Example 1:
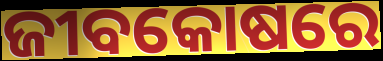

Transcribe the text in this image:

ଜୀବକୋଷରେ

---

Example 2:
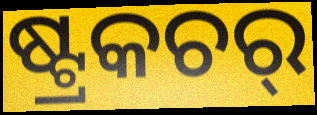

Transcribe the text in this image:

ଷ୍ଟ୍ରକଚର୍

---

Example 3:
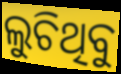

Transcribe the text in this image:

ଲୁଚିଥିବୁ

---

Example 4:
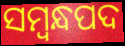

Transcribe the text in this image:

ସମ୍ବନ୍ଧପଦ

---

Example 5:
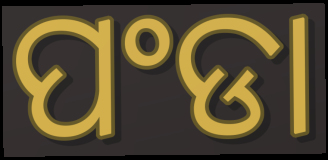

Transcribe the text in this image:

ପଂଡା